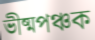
ভীষ্মপঞ্চক